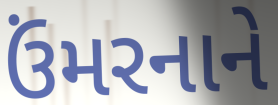
ઉંમરનાને